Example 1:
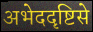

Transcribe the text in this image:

अभेददृष्टिसे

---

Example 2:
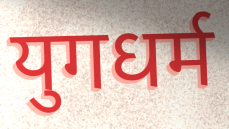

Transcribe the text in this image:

युगधर्म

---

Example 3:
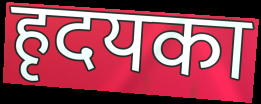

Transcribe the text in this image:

हृदयका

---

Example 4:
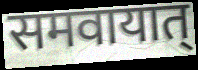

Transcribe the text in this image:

समवायात्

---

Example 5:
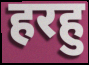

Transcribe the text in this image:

हरहु